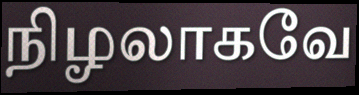
நிழலாகவே